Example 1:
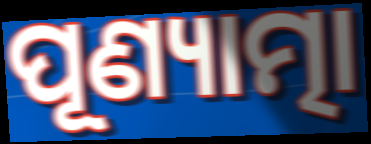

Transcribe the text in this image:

ପୂଣ୍ୟାତ୍ମା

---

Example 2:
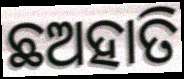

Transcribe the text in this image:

ଛଅହାତି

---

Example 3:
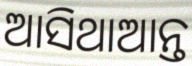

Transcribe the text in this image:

ଆସିଥାଆନ୍ତ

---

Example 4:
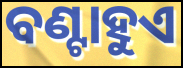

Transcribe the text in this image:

ବଣ୍ଟାହୁଏ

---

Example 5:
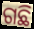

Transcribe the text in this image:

ଗଛି